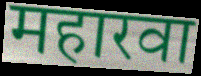
महारवा